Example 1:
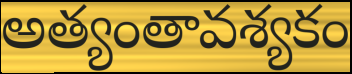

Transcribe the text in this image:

అత్యంతావశ్యకం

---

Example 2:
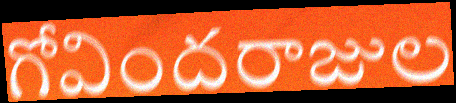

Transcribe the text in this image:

గోవిందరాజుల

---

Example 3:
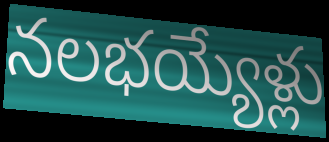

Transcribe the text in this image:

నలభయ్యేళ్లు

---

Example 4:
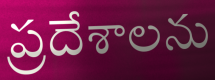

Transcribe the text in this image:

ప్రదేశాలను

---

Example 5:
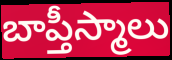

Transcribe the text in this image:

బాప్తీస్మాలు